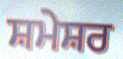
ਸ਼ਮੇਸ਼ਰ